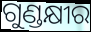
ଗୁଣ୍ଡକ୍ଷୀର